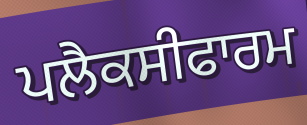
ਪਲੈਕਸੀਫਾਰਮ